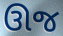
ઊજ